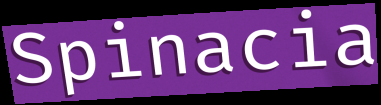
Spinacia